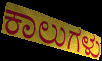
ಕಾಲುಗಳು